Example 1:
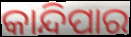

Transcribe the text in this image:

କାନ୍ଦିପାର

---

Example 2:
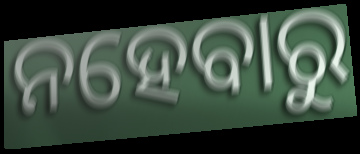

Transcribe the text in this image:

ନହେବାରୁ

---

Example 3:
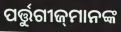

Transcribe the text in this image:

ପର୍ତ୍ତୁଗୀଜ୍‌ମାନଙ୍କ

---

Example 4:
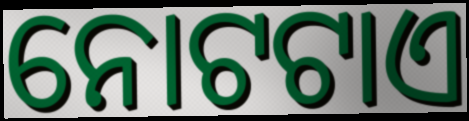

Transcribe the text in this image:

ନୋଟଟାଏ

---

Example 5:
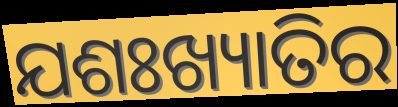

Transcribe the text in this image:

ଯଶଃଖ୍ୟାତିର